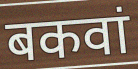
बकवां